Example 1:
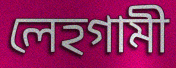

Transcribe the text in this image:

লেহগামী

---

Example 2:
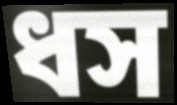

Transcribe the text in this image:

ধস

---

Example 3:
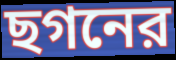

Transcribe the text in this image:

ছগনের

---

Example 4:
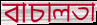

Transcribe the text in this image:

বাচালতা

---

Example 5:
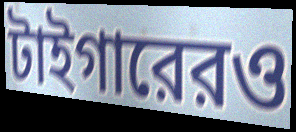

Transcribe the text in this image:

টাইগারেরও